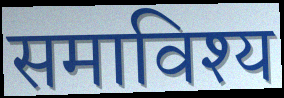
समाविश्य